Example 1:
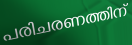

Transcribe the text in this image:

പരിചരണത്തിന്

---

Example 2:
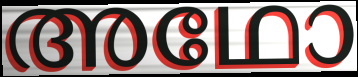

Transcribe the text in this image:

അഥോ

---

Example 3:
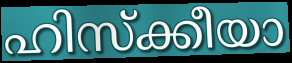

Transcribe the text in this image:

ഹിസ്ക്കീയാ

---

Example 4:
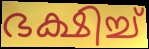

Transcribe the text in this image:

ഭക്ഷിച്ച്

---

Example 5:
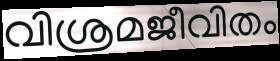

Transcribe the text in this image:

വിശ്രമജീവിതം